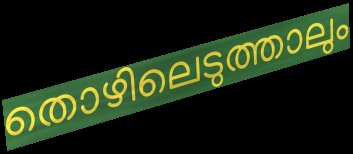
തൊഴിലെടുത്താലും